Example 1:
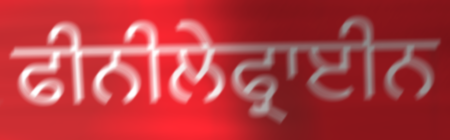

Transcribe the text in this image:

ਫੀਨੀਲੇਫ੍ਰਾਈਨ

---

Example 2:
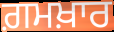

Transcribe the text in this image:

ਗ਼ਮਖ਼ਾਰ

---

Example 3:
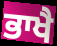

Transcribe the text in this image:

ਭਾਖੈ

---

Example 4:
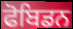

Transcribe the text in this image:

ਫੋਬਿਡਨ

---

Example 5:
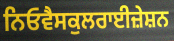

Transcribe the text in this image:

ਨਿਓਵੈਸਕੁਲਰਾਈਜ਼ੇਸ਼ਨ